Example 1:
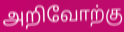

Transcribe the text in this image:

அறிவோற்கு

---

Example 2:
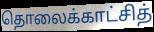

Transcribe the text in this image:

தொலைக்காட்சித்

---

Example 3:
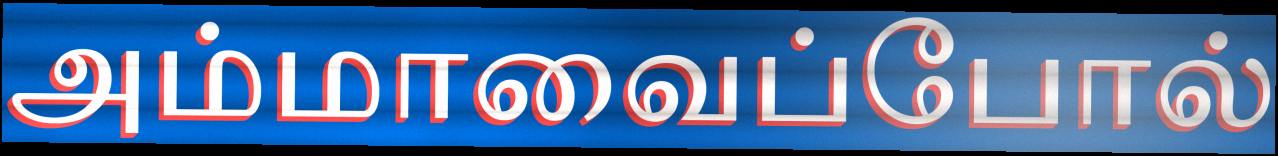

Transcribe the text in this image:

அம்மாவைப்போல்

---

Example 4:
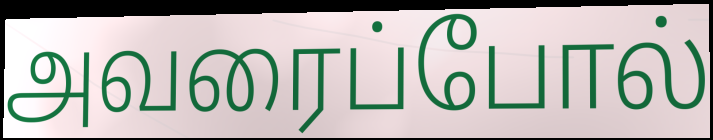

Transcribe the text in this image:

அவரைப்போல்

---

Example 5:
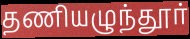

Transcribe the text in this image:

தணியழுந்தூர்